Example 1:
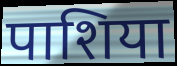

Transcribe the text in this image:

पाशिया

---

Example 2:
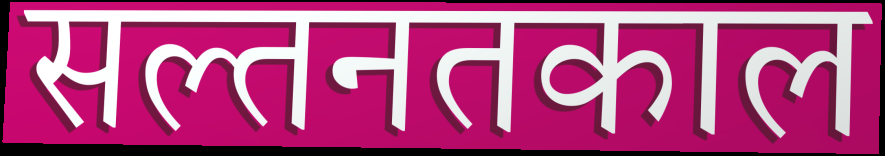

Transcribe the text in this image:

सल्तनतकाल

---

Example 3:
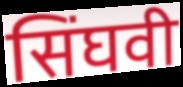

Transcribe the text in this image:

सिंघवी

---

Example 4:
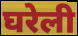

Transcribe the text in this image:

घरेली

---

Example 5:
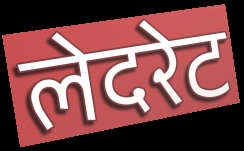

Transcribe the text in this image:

लेदरेट